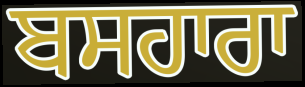
ਬਸਹਾਰਾ